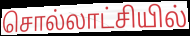
சொல்லாட்சியில்